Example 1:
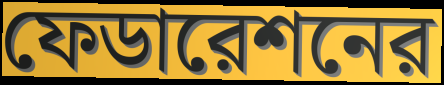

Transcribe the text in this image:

ফেডারেশনের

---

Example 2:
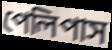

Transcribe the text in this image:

পেলিপাস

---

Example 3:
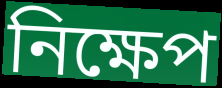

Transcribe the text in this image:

নিক্ষেপ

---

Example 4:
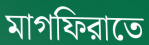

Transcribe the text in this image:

মাগফিরাতে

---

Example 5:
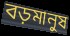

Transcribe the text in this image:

বড়মানুষ